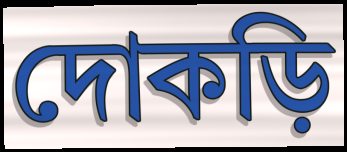
দোকড়ি